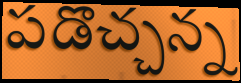
పడొచ్చన్న